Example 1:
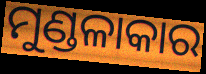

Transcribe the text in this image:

ମୁଣ୍ଡଳାକାର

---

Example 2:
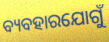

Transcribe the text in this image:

ବ୍ୟବହାରଯୋଗୁଁ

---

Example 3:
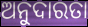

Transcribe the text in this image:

ଅନୁଦାରତା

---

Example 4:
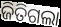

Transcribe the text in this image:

ଜିତିଗଲା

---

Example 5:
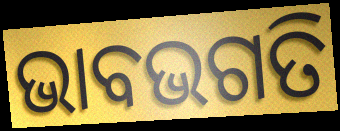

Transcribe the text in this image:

ଭାବଭଗତି